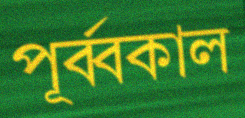
পূর্ব্বকাল